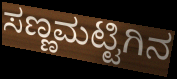
ಸಣ್ಣಮಟ್ಟಿಗಿನ